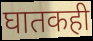
घातकही